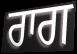
ਰਾਗ